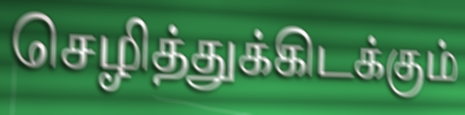
செழித்துக்கிடக்கும்